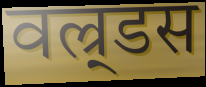
वल्र्डस